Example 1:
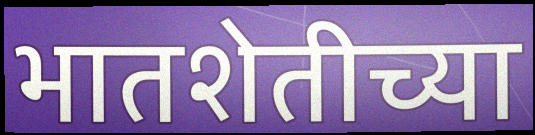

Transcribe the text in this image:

भातशेतीच्या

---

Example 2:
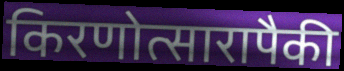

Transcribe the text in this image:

किरणोत्सारापैकी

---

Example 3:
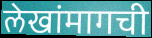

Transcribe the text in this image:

लेखांमागची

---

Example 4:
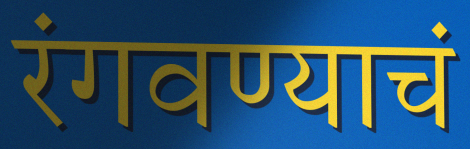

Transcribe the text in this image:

रंगवण्याचं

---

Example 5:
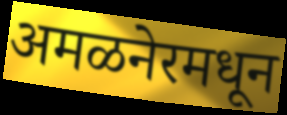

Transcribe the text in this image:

अमळनेरमधून